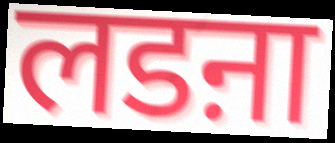
लडऩा